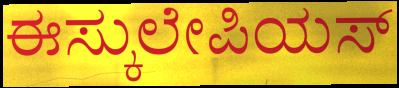
ಈಸ್ಕುಲೇಪಿಯಸ್